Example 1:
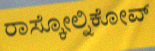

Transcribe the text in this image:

ರಾಸ್ಕೋಲ್ನಿಕೋವ್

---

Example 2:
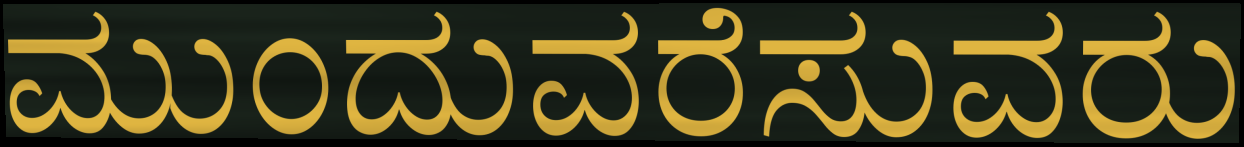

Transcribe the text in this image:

ಮುಂದುವರೆಸುವರು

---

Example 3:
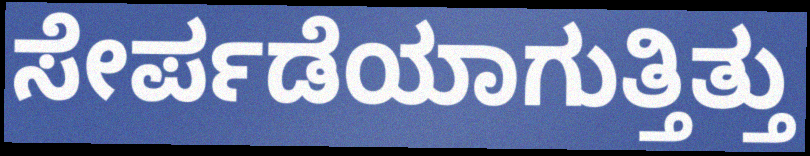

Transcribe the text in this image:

ಸೇರ್ಪಡೆಯಾಗುತ್ತಿತ್ತು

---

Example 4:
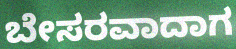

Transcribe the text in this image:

ಬೇಸರವಾದಾಗ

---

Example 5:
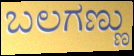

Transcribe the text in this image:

ಬಲಗಣ್ಣು